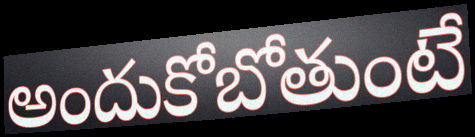
అందుకోబోతుంటే